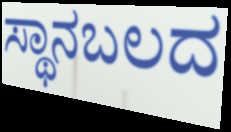
ಸ್ಥಾನಬಲದ